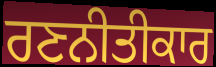
ਰਣਨੀਤੀਕਾਰ